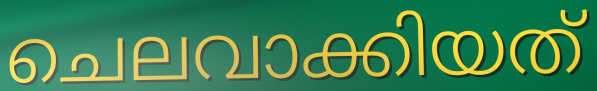
ചെലവാക്കിയത്